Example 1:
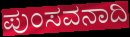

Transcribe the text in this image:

ಪುಂಸವನಾದಿ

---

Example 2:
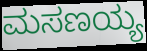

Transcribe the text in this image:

ಮಸಣಯ್ಯ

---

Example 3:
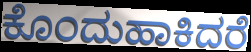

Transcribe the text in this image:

ಕೊಂದುಹಾಕಿದರೆ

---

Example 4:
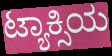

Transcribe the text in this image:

ಟ್ಯಾಕ್ಸಿಯ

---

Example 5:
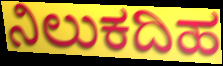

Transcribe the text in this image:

ನಿಲುಕದಿಹ